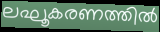
ലഘൂകരണത്തിൽ